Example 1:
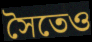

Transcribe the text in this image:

সৈতেও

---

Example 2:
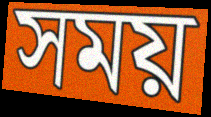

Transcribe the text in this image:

সময়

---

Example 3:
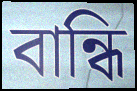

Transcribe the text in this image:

বান্ধি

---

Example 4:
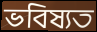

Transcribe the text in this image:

ভবিষ্যত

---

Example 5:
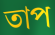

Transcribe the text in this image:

তাপ